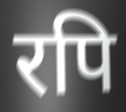
रपि